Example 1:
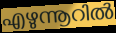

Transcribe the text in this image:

എഴുന്നൂറിൽ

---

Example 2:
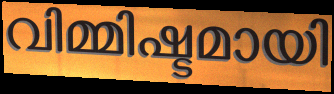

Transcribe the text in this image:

വിമ്മിഷ്ടമായി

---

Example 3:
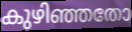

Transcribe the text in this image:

കുഴിഞ്ഞതോ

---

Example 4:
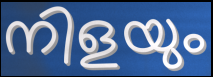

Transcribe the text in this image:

നിളയും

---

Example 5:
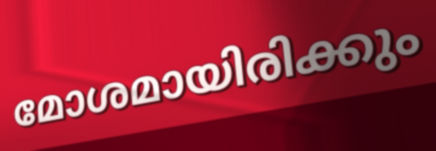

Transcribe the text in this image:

മോശമായിരിക്കും